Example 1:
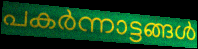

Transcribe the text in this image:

പകർന്നാട്ടങ്ങൾ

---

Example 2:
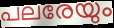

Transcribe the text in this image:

പലരേയും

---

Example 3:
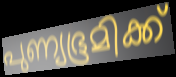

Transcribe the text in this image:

പുണ്യഭൂമിക്ക്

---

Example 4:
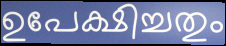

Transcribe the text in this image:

ഉപേക്ഷിച്ചതും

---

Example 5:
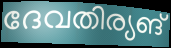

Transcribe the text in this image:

ദേവതിര്യങ്